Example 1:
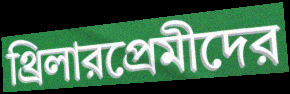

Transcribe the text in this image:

থ্রিলারপ্রেমীদের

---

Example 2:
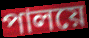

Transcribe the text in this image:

পালয়ে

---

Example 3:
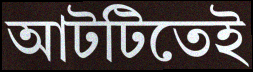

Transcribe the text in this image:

আটটিতেই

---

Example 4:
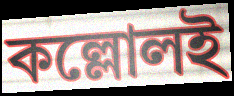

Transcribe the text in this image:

কল্লোলই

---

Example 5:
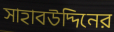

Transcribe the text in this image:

সাহাবউদ্দিনের